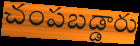
చంపబడ్డారు